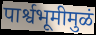
पार्श्वभूमीमुळं